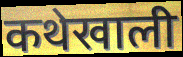
कथेखाली